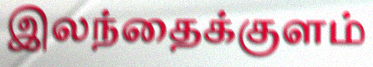
இலந்தைக்குளம்